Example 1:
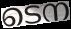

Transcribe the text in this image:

ടെന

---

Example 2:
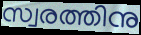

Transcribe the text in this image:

സ്വരത്തിനു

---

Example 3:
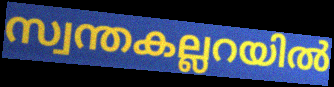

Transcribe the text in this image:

സ്വന്തകല്ലറയിൽ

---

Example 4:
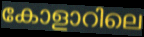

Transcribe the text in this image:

കോളാറിലെ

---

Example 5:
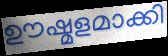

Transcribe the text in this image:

ഊഷ്മളമാക്കി